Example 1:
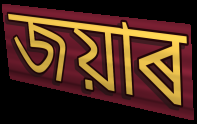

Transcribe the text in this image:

জয়াৰ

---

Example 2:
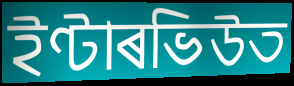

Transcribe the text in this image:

ইণ্টাৰভিউত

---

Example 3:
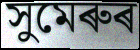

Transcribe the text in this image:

সুমেৰুৰ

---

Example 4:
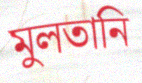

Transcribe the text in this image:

মুলতানি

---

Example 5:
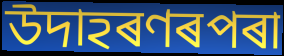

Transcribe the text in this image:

উদাহৰণৰপৰা